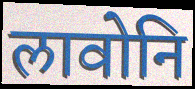
लावोनि